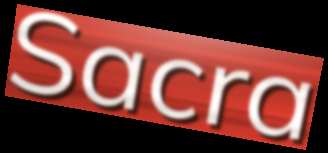
Sacra